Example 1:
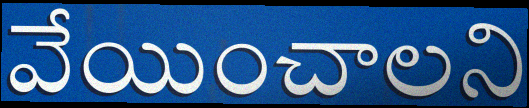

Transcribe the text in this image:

వేయించాలని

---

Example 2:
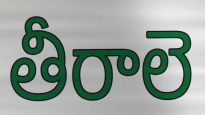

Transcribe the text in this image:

తీరాలె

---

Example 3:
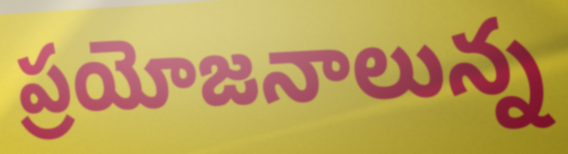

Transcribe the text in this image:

ప్రయోజనాలున్న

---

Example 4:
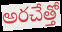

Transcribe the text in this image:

అరచేత్తో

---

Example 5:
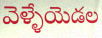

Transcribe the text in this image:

వెళ్ళేయెడల